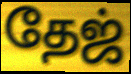
தேஜ்